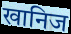
खानिज